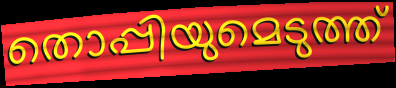
തൊപ്പിയുമെടുത്ത്